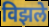
विझले